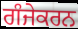
ਗੰਜੇਕਰਨ